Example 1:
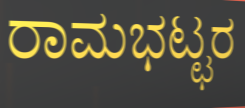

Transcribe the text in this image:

ರಾಮಭಟ್ಟರ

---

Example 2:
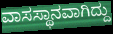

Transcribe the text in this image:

ವಾಸಸ್ಥಾನವಾಗಿದ್ದು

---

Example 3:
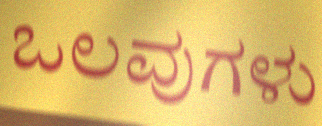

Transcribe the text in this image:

ಒಲವುಗಳು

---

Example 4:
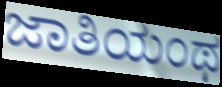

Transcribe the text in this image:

ಜಾತಿಯಂಥ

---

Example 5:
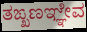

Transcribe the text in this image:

ತಙ್ಖಣಞ್ಞೇವ